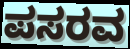
ಪಸರವ